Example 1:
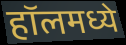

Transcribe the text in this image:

हॉलमध्ये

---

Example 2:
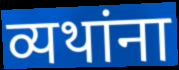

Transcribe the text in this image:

व्यथांना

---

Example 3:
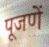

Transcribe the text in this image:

पूजणें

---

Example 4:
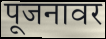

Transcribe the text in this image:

पूजनावर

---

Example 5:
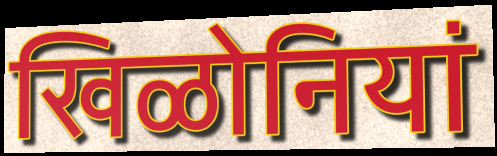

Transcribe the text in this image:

खिळोनियां